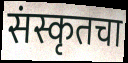
संस्कृतचा